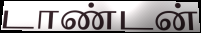
டாண்டன்